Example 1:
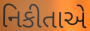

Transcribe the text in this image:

નિકીતાએ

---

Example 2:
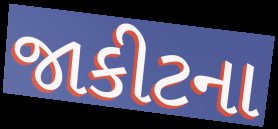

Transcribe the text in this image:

જાકીટના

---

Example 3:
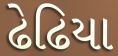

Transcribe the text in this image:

ઢેઢિયા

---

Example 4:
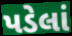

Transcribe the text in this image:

પડેલાં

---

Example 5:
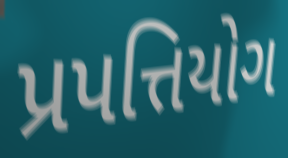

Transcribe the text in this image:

પ્રપત્તિયોગ